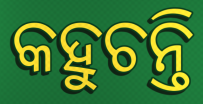
କହୁଚନ୍ତି